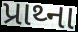
પ્રાથ્ના